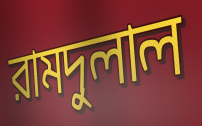
রামদুলাল